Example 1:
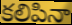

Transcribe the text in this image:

కలిపినా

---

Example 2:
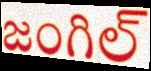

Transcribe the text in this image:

జంగిల్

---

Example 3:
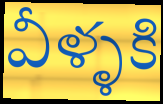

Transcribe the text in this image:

వీళ్ళకి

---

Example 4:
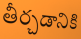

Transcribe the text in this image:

తీర్చడానికి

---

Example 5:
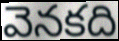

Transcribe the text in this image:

వెనకది